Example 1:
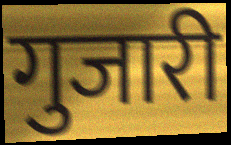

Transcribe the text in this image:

गुजारी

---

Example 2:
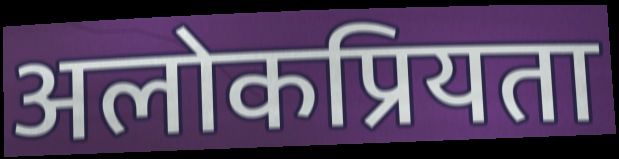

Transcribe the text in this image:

अलोकप्रियता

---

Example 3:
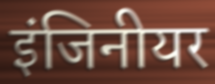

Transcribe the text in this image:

इंजिनीयर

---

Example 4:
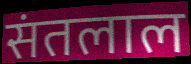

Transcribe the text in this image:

संतलाल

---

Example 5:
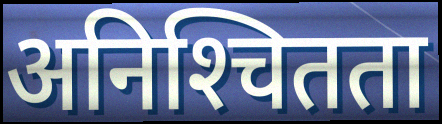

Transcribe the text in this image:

अनिश्‍चितता